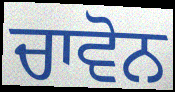
ਚਾਵੋਨ